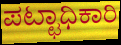
ಪಟ್ಟಾಧಿಕಾರಿ